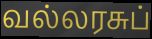
வல்லரசுப்